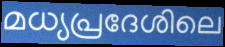
മധ്യപ്രദേശിലെ